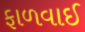
ફાળવાઈ